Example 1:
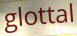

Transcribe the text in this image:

glottal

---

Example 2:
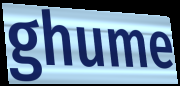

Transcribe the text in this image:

ghume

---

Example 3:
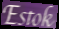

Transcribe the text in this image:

Estok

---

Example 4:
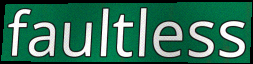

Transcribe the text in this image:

faultless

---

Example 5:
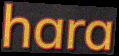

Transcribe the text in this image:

hara